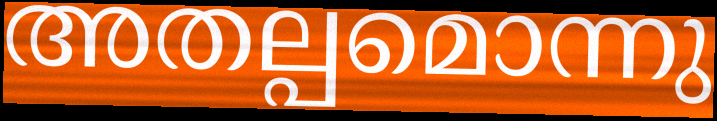
അതല്പമൊന്നു